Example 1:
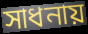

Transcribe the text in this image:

সাধনায়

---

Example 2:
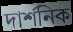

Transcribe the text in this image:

দার্শনিক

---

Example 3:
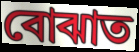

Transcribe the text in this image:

বোঝাত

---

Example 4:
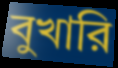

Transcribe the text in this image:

বুখারি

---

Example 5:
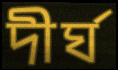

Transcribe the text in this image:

দীর্ঘ